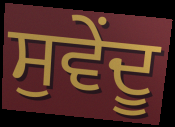
ਸੁਵੇਂਦੂ